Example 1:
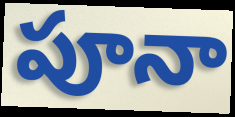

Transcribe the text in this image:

పూనా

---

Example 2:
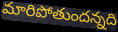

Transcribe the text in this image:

మారిపోతుందన్నది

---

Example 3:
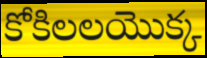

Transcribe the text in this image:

కోకిలలయొక్క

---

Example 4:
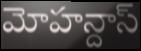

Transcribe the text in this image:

మోహన్దాస్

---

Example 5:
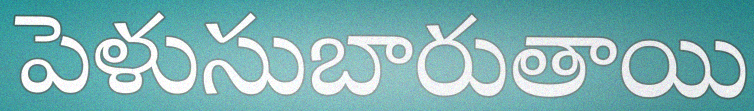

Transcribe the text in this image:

పెళుసుబారుతాయి